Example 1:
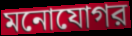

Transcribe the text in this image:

মনোযোগর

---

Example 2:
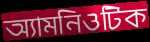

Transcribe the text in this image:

অ্যামনিওটিক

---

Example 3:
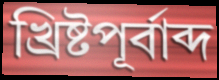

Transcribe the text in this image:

খ্রিষ্টপূর্বাব্দ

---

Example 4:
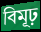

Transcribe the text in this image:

বিমূঢ়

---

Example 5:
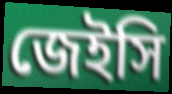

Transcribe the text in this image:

জেইসি